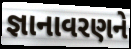
જ્ઞાનાવરણને